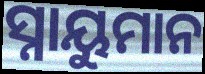
ସ୍ନାୟୁମାନ